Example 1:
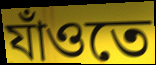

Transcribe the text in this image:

যাঁওতে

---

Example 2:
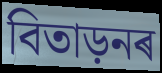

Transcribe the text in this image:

বিতাড়নৰ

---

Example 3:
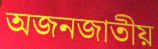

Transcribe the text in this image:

অজনজাতীয়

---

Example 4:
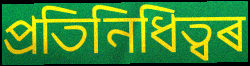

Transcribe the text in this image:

প্ৰতিনিধিত্বৰ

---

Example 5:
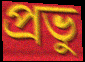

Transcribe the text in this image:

প্ৰভু